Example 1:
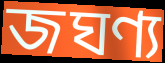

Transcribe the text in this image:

জঘণ্য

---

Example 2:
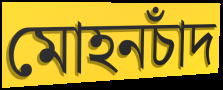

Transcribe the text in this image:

মোহনচাঁদ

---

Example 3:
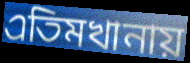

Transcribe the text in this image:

এতিমখানায়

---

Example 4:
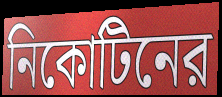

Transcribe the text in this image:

নিকোটিনের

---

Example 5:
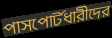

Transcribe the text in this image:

পাসপোর্টধারীদের